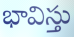
భావిస్తు